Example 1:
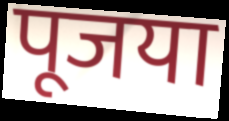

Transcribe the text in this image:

पूजया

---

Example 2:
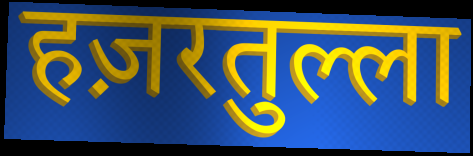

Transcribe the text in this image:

हज़रतुल्ला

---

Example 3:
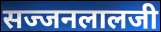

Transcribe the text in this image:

सज्जनलालजी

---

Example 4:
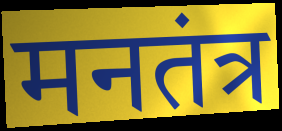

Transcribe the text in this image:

मनतंत्र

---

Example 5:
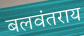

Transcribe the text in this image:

बलवंतराय